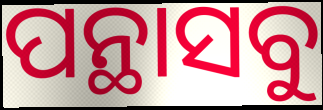
ପନ୍ଥାସବୁ